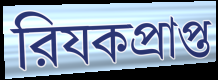
রিযকপ্রাপ্ত